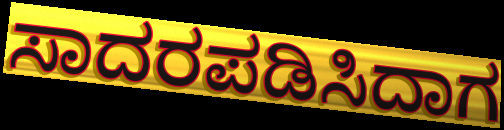
ಸಾದರಪಡಿಸಿದಾಗ